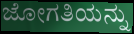
ಜೋಗತಿಯನ್ನು